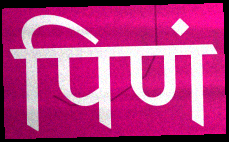
पिणं